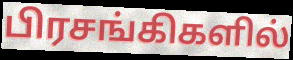
பிரசங்கிகளில்